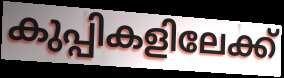
കുപ്പികളിലേക്ക്